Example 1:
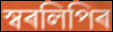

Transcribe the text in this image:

স্বৰলিপিৰ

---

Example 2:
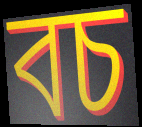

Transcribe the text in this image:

বচ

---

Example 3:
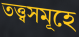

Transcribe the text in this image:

তত্ত্বসমূহে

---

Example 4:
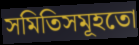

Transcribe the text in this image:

সমিতিসমূহতো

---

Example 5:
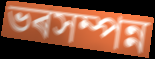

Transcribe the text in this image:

ভৰসম্পন্ন